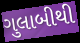
ગુલાબીથી